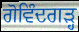
ਗੋਵਿੰਦਗੜ੍ਹ